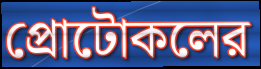
প্রোটোকলের